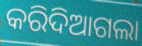
କରିଦିଆଗଲା